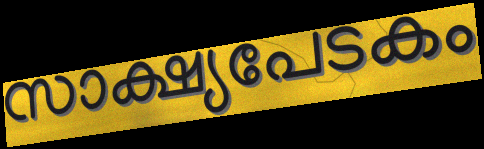
സാക്ഷ്യപേടകം